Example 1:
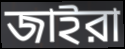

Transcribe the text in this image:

জাইরা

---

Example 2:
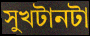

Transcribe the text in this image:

সুখটানটা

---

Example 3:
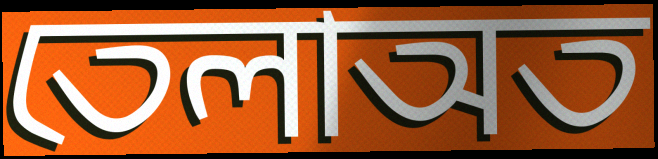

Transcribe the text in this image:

তেলাঅত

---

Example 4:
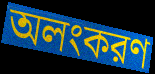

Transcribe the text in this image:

অলংকরণ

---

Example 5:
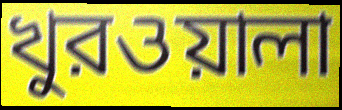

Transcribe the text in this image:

খুরওয়ালা